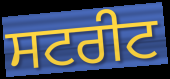
ਸਟਰੀਟ